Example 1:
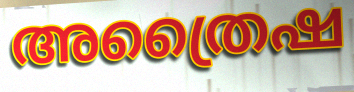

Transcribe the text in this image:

അത്രൈഷ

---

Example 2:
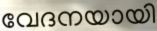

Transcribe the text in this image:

വേദനയായി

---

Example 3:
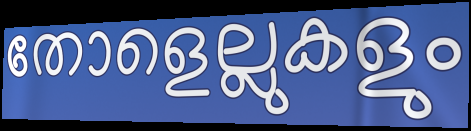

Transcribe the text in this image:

തോളെല്ലുകളും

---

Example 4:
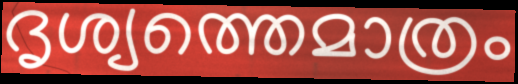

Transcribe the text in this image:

ദൃശ്യത്തെമാത്രം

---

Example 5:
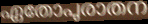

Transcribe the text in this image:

ഏതോപുരാതന